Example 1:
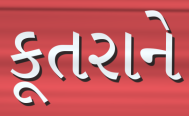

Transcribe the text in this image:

કૂતરાને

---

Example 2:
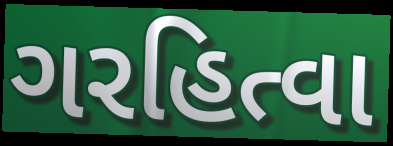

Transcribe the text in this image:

ગરહિત્વા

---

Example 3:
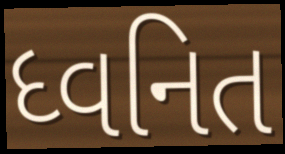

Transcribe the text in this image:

ધ્વનિત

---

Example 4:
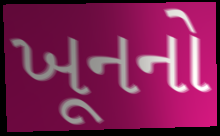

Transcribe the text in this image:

ખૂનનો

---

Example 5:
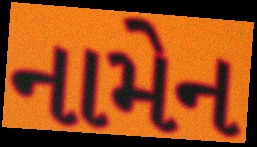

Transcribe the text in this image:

નામેન